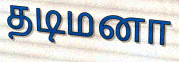
தடிமனா